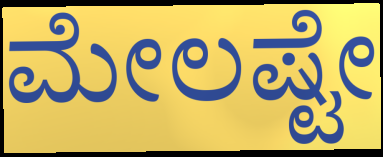
ಮೇಲಷ್ಟೇ